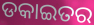
ଡକାଇତର